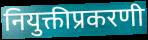
नियुक्तीप्रकरणी